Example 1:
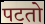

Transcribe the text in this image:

पटतो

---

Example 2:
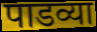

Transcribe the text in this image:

पाडव्या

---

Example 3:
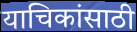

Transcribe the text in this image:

याचिकांसाठी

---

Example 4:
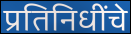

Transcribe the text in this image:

प्रतिनिधींचे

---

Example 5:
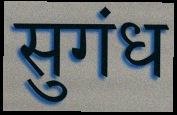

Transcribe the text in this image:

सुगंध